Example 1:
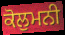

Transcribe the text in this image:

ਕੋਲੁਮਨੀ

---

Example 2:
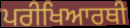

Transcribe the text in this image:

ਪਰੀਖਿਆਰਥੀ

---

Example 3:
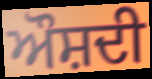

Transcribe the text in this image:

ਔਸ਼ਦੀ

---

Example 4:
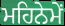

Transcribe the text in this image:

ਮਹਿਨੇਮੇਂ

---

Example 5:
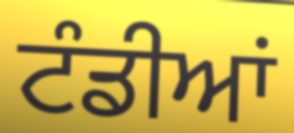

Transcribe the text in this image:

ਟੰਡੀਆਂ